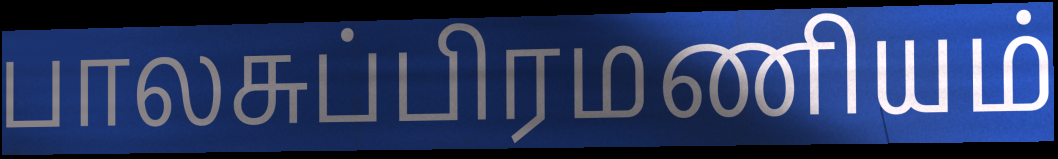
பாலசுப்பிரமணியம்